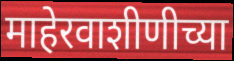
माहेरवाशीणीच्या